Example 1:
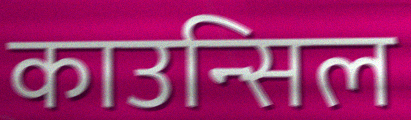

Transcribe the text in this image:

काउन्सिल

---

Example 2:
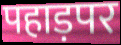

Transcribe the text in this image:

पहाड़पर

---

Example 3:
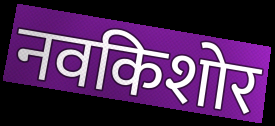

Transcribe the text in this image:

नवकिशोर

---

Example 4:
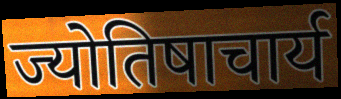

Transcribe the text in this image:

ज्योतिषाचार्य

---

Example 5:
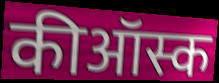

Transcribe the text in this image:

कीऑस्क